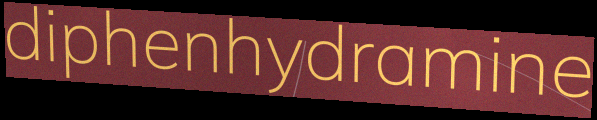
diphenhydramine